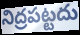
నిద్రపట్టదు